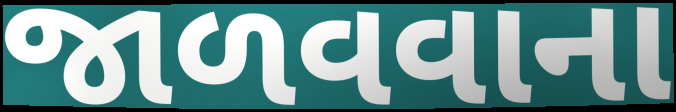
જાળવવાના